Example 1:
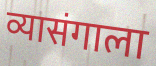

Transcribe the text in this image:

व्यासंगाला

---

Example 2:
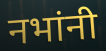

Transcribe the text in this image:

नभांनी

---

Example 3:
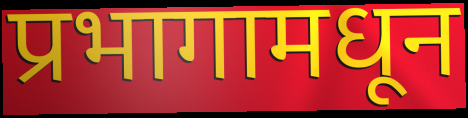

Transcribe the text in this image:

प्रभागामधून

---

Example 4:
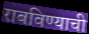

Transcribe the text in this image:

राबविण्याची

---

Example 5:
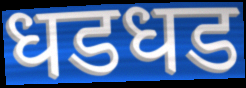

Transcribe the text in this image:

धडधड